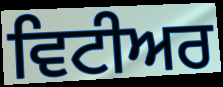
ਵਿਟੀਅਰ